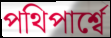
পথিপার্শ্বে